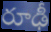
రూఢీ